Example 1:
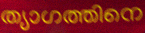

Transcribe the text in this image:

ത്യാഗത്തിനെ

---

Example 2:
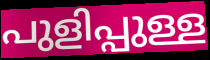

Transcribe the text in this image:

പുളിപ്പുള്ള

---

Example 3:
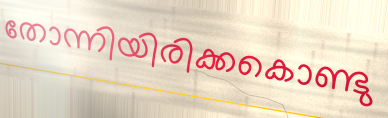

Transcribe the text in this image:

തോന്നിയിരിക്കകൊണ്ടു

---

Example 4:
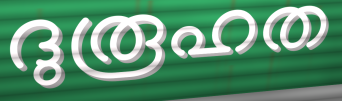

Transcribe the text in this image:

ദുരൂഹത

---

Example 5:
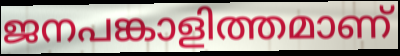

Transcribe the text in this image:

ജനപങ്കാളിത്തമാണ്